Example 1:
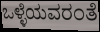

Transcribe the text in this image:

ಒಳ್ಳೆಯವರಂತೆ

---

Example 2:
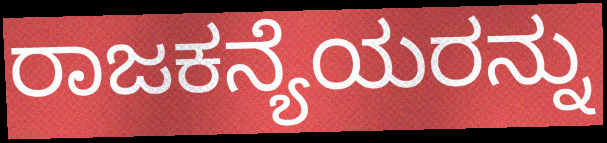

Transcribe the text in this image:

ರಾಜಕನ್ಯೆಯರನ್ನು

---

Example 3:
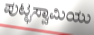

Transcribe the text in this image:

ಪುಟ್ಟಸ್ವಾಮಿಯು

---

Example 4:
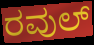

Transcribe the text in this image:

ರವುಲ್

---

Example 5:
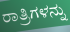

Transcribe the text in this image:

ರಾತ್ರಿಗಳನ್ನು